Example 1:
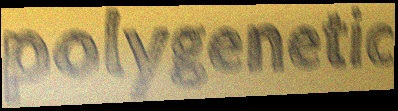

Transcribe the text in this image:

polygenetic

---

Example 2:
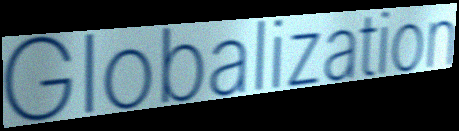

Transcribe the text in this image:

Globalization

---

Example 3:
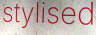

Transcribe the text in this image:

stylised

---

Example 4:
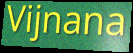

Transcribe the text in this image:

Vijnana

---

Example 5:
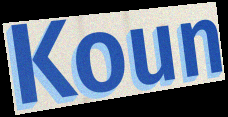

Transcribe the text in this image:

Koun